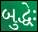
બુદ્ધેઃ